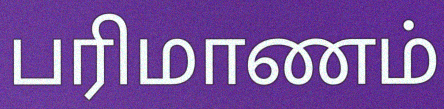
பரிமாணம்